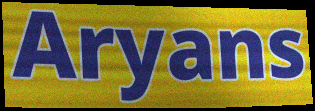
Aryans